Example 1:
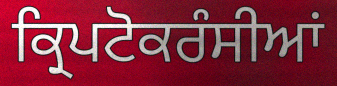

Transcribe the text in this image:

ਕ੍ਰਿਪਟੋਕਰੰਸੀਆਂ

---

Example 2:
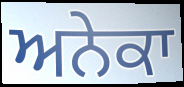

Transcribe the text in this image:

ਅਨੇਕਾ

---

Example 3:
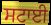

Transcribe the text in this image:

ਸਟਾਈ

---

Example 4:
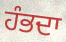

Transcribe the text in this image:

ਹੰਭਦਾ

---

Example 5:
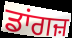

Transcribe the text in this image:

ਡਾਂਗਜ਼